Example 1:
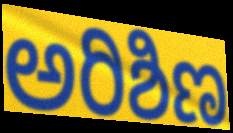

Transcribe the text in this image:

ಅರಿಶಿಣ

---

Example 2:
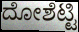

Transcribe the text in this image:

ದೋಶೆಟ್ಟಿ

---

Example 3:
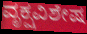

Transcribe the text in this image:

ವೃಕ್ಷವಿಶೇಷ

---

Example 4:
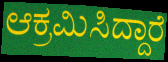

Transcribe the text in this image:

ಆಕ್ರಮಿಸಿದ್ದಾರೆ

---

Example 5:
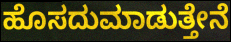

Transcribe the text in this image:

ಹೊಸದುಮಾಡುತ್ತೇನೆ